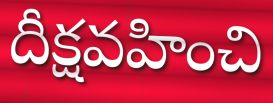
దీక్షవహించి